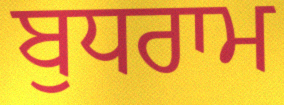
ਬੁਧਰਾਮ